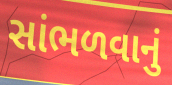
સાંભળવાનું